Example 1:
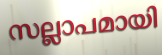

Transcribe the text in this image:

സല്ലാപമായി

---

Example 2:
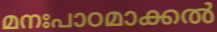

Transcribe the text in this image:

മനഃപാഠമാക്കൽ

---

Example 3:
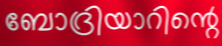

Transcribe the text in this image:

ബോദ്രിയാറിന്റെ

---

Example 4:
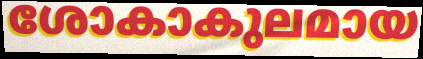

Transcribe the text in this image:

ശോകാകുലമായ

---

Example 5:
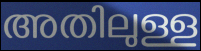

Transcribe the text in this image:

അതിലുള്ള